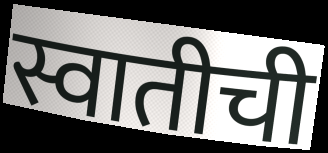
स्वातीची